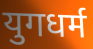
युगधर्म